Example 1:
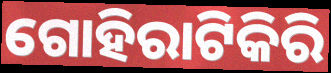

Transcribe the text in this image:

ଗୋହିରାଟିକିରି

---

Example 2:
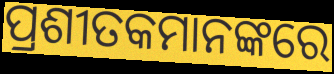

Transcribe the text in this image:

ପ୍ରଶୀତକମାନଙ୍କରେ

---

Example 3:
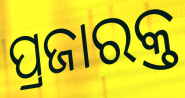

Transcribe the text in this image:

ପ୍ରଜାରକ୍ତ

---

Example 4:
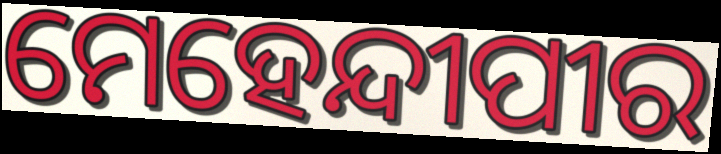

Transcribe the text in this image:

ମେହେନ୍ଦୀପୀର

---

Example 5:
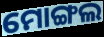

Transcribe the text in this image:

ମୋଙ୍ଗଲ